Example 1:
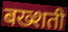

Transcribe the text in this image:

बख्शती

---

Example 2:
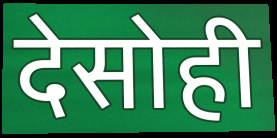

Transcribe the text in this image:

देसोही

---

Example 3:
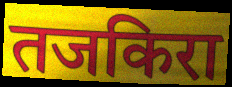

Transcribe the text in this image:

तजकिरा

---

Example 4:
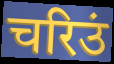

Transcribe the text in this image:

चरिउं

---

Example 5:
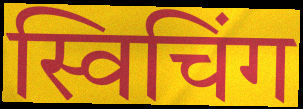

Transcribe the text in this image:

स्विचिंग